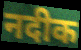
नदीक